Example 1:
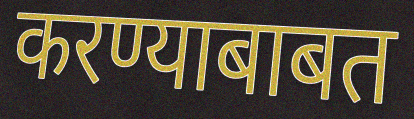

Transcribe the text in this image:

करण्याबाबत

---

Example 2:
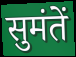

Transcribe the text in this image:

सुमंतें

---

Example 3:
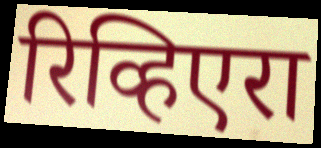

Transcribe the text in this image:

रिव्हिएरा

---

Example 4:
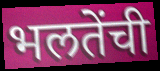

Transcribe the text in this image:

भलतेंची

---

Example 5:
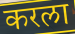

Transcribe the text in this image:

करला